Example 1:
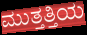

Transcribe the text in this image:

ಮುತ್ತತ್ತಿಯ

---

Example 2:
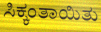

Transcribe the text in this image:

ಸಿಕ್ಕಂತಾಯಿತು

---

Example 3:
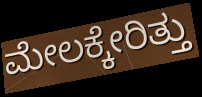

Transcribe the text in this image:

ಮೇಲಕ್ಕೇರಿತ್ತು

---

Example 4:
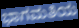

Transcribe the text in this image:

ಭಾಗಮತಿಯ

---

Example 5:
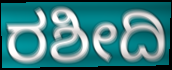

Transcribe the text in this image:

ರಶೀದಿ